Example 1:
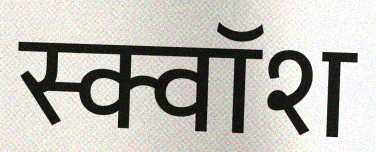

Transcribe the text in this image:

स्क्वॉश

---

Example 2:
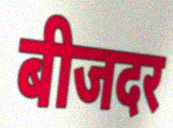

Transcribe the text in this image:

बीजदर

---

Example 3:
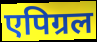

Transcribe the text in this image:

एपिग्रल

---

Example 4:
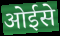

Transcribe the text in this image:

ओईसे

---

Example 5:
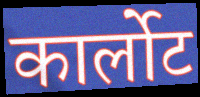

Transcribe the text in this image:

कार्लोट